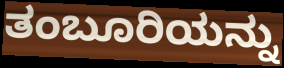
ತಂಬೂರಿಯನ್ನು